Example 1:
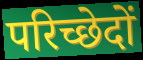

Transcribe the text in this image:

परिच्छेदों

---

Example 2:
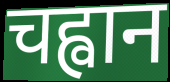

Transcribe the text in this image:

चह्वान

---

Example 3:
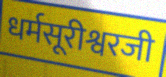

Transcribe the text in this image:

धर्मसूरीश्वरजी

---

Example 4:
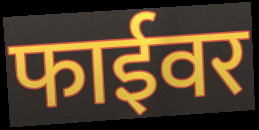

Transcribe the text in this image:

फाईवर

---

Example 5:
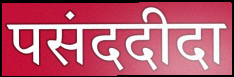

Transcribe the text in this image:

पसंददीदा